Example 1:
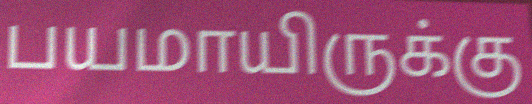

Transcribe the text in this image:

பயமாயிருக்கு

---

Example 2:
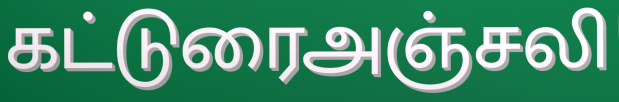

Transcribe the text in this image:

கட்டுரைஅஞ்சலி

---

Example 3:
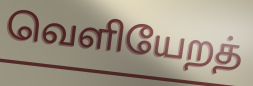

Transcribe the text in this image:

வெளியேறத்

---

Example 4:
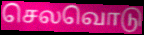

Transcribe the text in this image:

செலவொடு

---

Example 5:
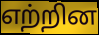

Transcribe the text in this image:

எற்றின